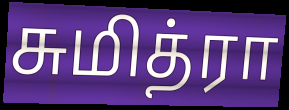
சுமித்ரா